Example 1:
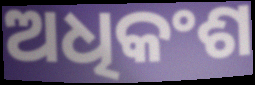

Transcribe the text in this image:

ଅଧିକଂଶ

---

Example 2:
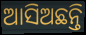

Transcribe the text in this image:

ଆସିଅଛନ୍ତି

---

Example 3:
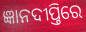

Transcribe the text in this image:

ଜ୍ଞାନଦୀପ୍ତିରେ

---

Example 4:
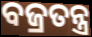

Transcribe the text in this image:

ବଜ୍ରତନ୍ତ୍ର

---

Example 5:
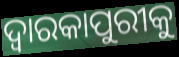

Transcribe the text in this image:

ଦ୍ୱାରକାପୁରୀକୁ